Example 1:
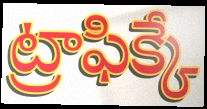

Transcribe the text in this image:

ట్రాఫిక్కే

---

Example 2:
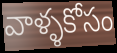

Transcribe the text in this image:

వాళ్ళకోసం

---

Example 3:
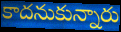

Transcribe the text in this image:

కాదనుకున్నారు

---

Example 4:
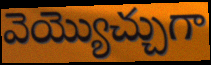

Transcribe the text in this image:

వెయ్యొచ్చుగా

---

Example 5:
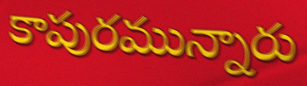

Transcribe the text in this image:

కాపురమున్నారు